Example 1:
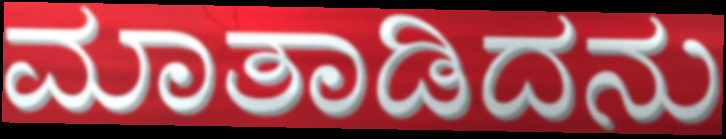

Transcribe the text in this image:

ಮಾತಾಡಿದನು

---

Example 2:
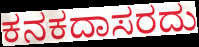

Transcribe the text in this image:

ಕನಕದಾಸರದು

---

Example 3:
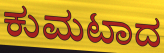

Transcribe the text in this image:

ಕುಮಟಾದ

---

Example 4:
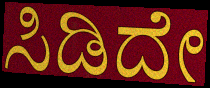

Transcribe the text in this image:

ಸಿಡಿದೇ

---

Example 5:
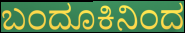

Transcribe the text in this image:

ಬಂದೂಕಿನಿಂದ